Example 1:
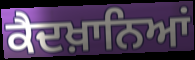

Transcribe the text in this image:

ਕੈਦਖ਼ਾਨਿਆਂ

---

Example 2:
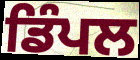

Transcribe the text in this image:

ਡਿੰਪਲ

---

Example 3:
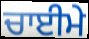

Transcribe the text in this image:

ਚਾਈਮੇ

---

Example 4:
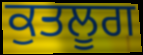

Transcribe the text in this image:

ਕੁਤਲੂਗ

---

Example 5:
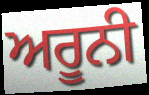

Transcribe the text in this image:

ਅਰੂਨੀ